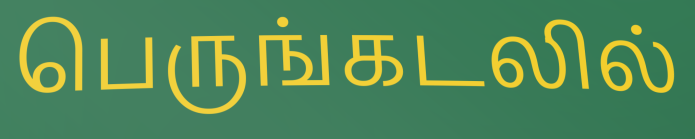
பெருங்கடலில்